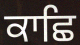
ਕਾਛਿ